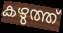
കഴുത്ത്